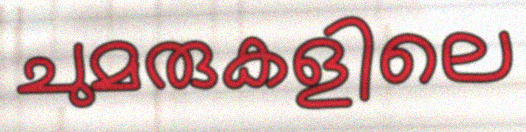
ചുമരുകളിലെ